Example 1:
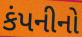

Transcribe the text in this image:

કંપનીનો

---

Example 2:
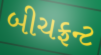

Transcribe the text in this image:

બીચફ્રન્ટ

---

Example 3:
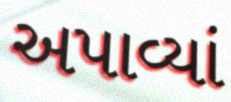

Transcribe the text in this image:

અપાવ્યાં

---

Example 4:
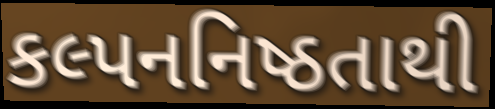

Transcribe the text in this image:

કલ્પનનિષ્ઠતાથી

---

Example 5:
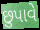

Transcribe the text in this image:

છુપાવે